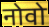
नोवो